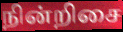
நின்றிசை